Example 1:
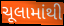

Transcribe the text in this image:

ચૂલામાંથી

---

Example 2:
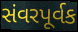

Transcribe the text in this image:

સંવરપૂર્વક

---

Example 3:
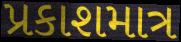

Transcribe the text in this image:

પ્રકાશમાત્ર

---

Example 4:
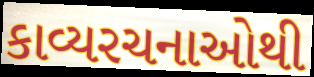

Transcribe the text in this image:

કાવ્યરચનાઓથી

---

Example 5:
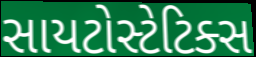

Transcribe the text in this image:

સાયટોસ્ટેટિક્સ